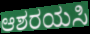
ಆಶರಯಸಿ